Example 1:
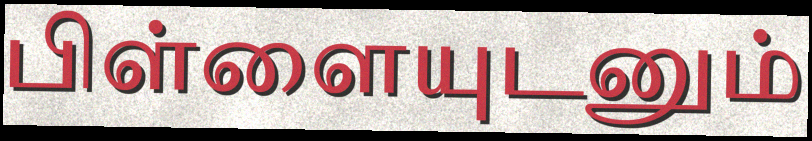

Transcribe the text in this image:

பிள்ளையுடனும்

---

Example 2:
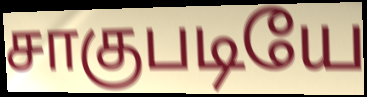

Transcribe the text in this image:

சாகுபடியே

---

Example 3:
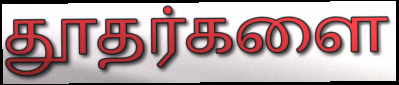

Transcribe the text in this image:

தூதர்களை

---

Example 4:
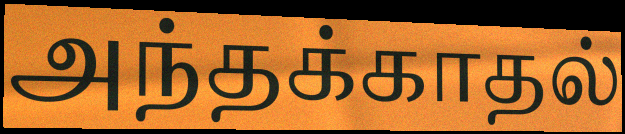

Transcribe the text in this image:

அந்தக்காதல்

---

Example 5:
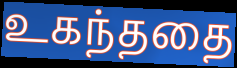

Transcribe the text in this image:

உகந்ததை